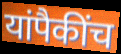
यांपैकींच